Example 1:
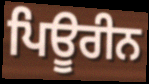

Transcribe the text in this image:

ਪਿਊਰੀਨ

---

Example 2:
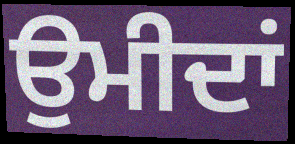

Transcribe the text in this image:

ਉਮੀਦਾਂ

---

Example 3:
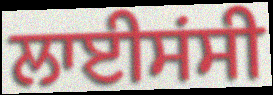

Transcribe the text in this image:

ਲਾਈਸਂਸੀ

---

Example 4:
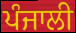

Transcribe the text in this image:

ਪੰਜਾਲੀ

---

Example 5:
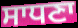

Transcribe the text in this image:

ਸਾਧਣਾ